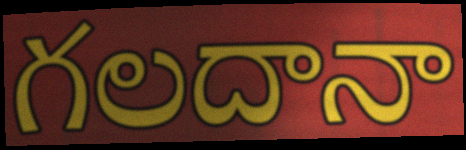
గలదానా